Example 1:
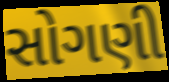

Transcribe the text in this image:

સોગણી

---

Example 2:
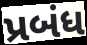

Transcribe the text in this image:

પ્રબંધ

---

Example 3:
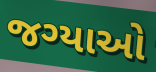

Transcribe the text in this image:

જગ્યાઓ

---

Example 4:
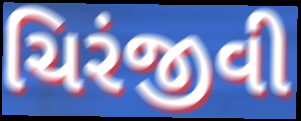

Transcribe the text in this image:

ચિરંજીવી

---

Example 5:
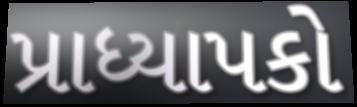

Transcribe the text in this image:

પ્રાધ્યાપકો